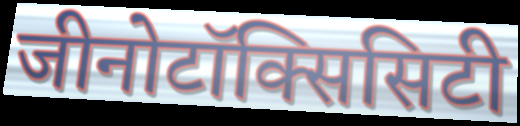
जीनोटॉक्सिसिटी